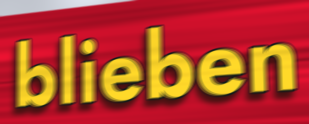
blieben